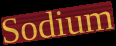
Sodium